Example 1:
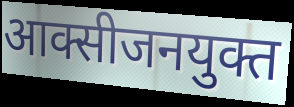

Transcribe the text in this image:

आक्सीजनयुक्त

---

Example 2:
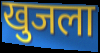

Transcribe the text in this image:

खुजला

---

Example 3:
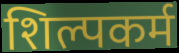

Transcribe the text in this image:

शिल्पकर्म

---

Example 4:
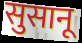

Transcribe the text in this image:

सुसानू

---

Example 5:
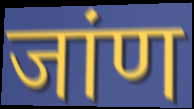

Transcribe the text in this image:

जांण